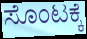
ಸೊಂಟಕ್ಕೆ